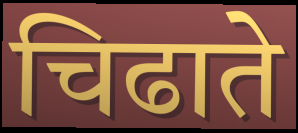
चिढाते